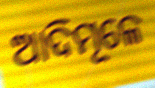
ଆଦିମୂଳେ